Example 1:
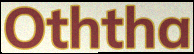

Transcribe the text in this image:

Oththa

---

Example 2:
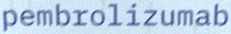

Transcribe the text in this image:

pembrolizumab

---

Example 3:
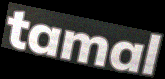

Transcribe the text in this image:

tamal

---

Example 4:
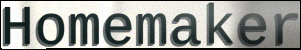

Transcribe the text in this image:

Homemaker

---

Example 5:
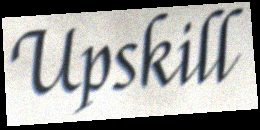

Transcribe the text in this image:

Upskill